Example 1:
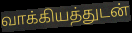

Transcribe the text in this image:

வாக்கியத்துடன்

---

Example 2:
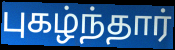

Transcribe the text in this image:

புகழ்ந்தார்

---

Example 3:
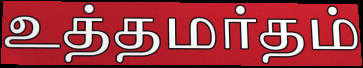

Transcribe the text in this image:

உத்தமர்தம்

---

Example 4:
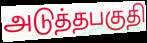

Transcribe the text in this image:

அடுத்தபகுதி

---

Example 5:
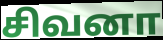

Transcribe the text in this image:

சிவனா